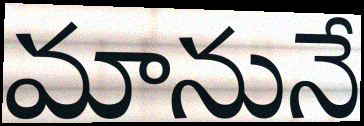
మానునే